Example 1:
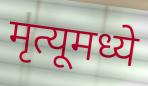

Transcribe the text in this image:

मृत्यूमध्ये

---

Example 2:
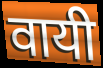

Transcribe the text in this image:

वायी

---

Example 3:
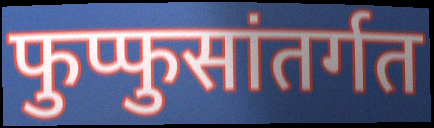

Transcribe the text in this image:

फुप्फुसांतर्गत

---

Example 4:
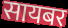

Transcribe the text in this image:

सायबर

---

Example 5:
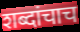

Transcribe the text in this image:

शब्दांचाच